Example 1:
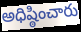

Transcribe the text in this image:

అధిష్ఠించారు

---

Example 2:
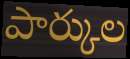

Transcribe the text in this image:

పార్కుల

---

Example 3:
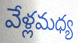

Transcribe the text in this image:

వేళ్లమధ్య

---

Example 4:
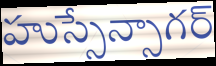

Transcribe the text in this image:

హుస్సేన్సాగర్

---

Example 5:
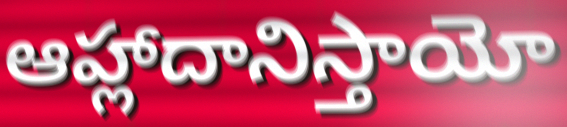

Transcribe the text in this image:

ఆహ్లాదానిస్తాయో